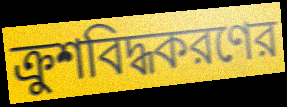
ক্রুশবিদ্ধকরণের